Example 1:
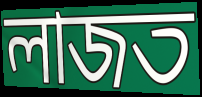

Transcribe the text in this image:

লাজত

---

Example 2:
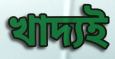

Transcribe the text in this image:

খাদ্যই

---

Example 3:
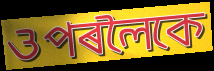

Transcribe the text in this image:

ওপৰলৈকে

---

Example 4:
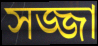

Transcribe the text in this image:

সজ্জা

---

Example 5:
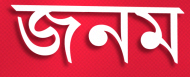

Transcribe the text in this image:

জনম